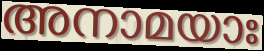
അനാമയാഃ